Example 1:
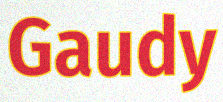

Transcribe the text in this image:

Gaudy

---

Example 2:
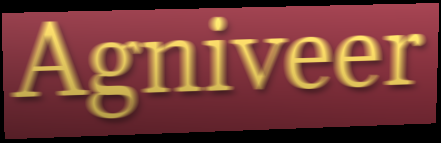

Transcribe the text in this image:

Agniveer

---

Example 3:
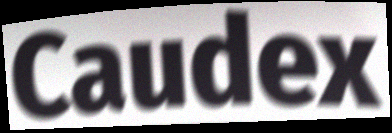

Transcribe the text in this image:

Caudex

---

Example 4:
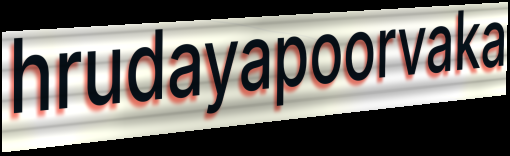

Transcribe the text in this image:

hrudayapoorvaka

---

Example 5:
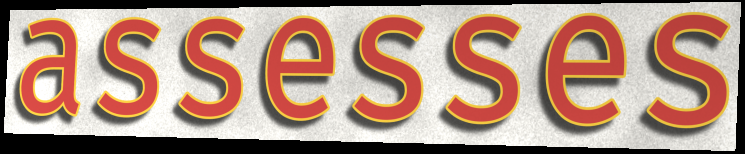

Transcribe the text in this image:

assesses